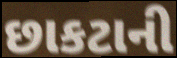
છાકટાની